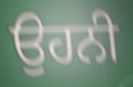
ਉਹਨੀ